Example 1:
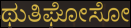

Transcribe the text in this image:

ಥುತಿಘೋಸೋ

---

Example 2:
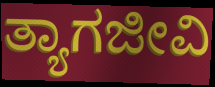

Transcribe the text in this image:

ತ್ಯಾಗಜೀವಿ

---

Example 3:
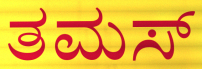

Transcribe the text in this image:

ತಮಸ್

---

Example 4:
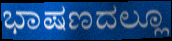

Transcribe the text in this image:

ಭಾಷಣದಲ್ಲೂ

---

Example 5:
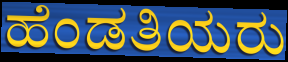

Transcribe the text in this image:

ಹೆಂಡತಿಯರು